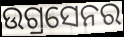
ଉଗ୍ରସେନର